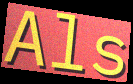
Als